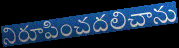
నిరూపించదలిచాను